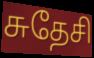
சுதேசி